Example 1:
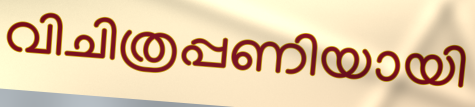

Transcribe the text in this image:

വിചിത്രപ്പണിയായി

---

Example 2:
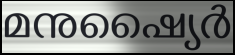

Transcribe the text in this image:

മനുഷ്യൈർ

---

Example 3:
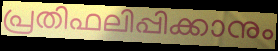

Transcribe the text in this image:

പ്രതിഫലിപ്പിക്കാനും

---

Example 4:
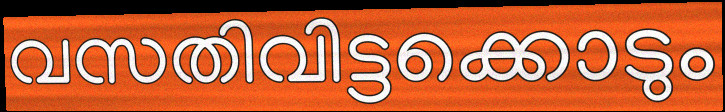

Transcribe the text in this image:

വസതിവിട്ടക്കൊടും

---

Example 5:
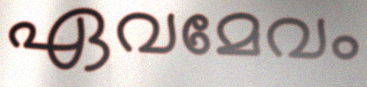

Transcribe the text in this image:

ഏവമേവം